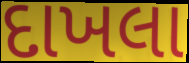
દાખલા